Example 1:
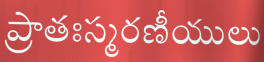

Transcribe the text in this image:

ప్రాతఃస్మరణీయులు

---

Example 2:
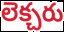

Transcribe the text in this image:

లెక్చరు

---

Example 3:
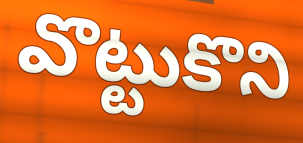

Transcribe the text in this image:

వొట్టుకొని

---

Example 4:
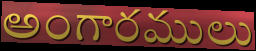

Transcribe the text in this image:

అంగారములు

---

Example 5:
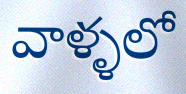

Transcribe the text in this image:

వాళ్ళలో